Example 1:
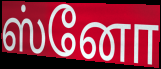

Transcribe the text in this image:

ஸ்னோ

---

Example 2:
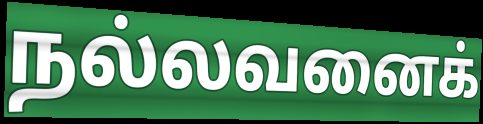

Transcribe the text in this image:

நல்லவனைக்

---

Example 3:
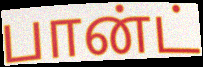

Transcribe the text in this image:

பான்ட்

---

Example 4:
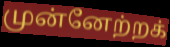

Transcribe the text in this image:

முன்னேற்றக்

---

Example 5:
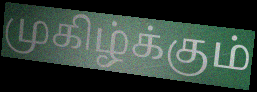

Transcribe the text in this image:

முகிழ்க்கும்